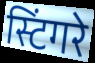
स्टिंगरे